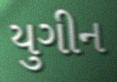
યુગીન